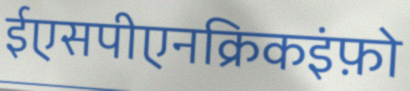
ईएसपीएनक्रिकइंफ़ो